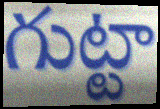
గుట్టా